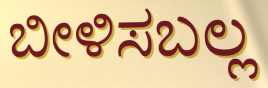
ಬೀಳಿಸಬಲ್ಲ